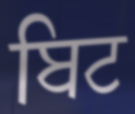
ਬਿਟ